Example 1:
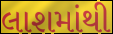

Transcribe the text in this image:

લાશમાંથી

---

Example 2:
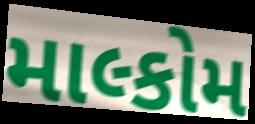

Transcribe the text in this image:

માલ્કોમ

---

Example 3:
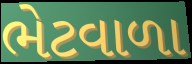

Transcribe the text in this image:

ભેટવાળા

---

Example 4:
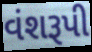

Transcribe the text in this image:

વંશરૂપી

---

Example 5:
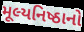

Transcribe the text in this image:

મૂલ્યનિષ્ઠાનો